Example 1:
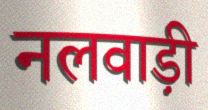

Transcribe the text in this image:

नलवाड़ी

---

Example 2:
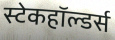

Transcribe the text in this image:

स्टेकहॉल्डर्स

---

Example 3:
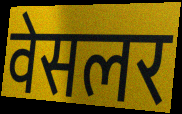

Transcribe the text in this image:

वेसलर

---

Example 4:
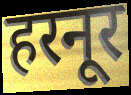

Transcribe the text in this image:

हरनूर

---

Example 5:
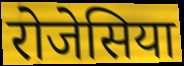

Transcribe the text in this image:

रोजेसिया